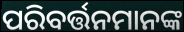
ପରିବର୍ତ୍ତନମାନଙ୍କ